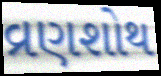
વ્રણશોથ